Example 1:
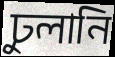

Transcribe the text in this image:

ঢুলানি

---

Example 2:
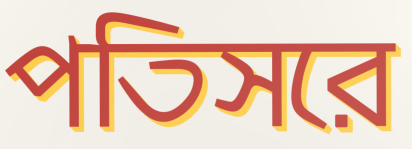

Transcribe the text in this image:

পতিসরে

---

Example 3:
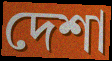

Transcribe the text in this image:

দেশা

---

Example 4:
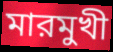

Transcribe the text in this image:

মারমুখী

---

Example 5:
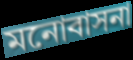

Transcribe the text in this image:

মনোবাসনা